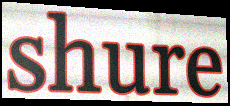
shure